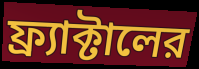
ফ্র্যাক্টালের